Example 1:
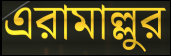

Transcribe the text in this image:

এরামাল্লুর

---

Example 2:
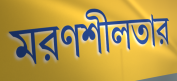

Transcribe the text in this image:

মরণশীলতার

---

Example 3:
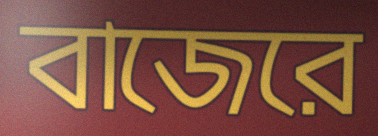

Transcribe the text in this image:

বাজেরে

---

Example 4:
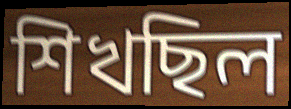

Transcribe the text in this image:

শিখছিল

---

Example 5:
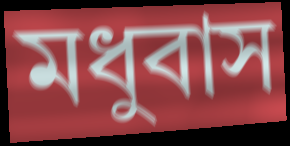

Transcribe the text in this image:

মধুবাস